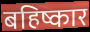
बहिष्‍कार